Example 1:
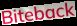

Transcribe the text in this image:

Biteback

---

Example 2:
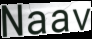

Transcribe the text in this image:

Naav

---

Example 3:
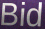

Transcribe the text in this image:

Bid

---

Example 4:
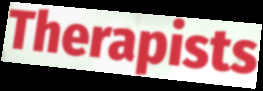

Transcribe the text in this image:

Therapists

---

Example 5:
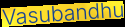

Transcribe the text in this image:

Vasubandhu